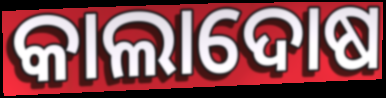
କାଲାଦୋଷ